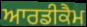
ਆਰਡੀਕੈਮ